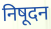
निषूदन